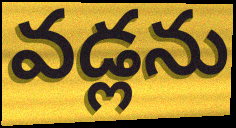
వడ్లను